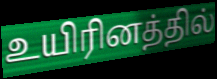
உயிரினத்தில்